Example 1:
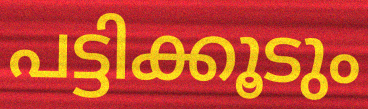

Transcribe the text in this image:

പട്ടിക്കൂടും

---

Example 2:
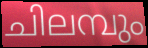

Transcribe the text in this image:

ചിലമ്പും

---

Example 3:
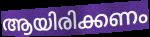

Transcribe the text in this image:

ആയിരിക്കണം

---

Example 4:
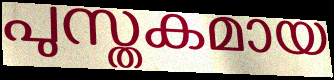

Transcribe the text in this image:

പുസ്തകമായ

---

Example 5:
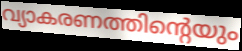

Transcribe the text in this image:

വ്യാകരണത്തിന്റെയും